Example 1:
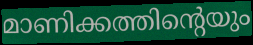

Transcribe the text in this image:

മാണിക്കത്തിന്റെയും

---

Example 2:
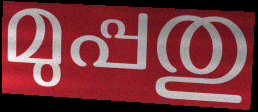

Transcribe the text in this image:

മുപ്പതു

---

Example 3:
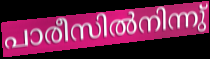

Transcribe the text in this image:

പാരീസിൽനിന്നു്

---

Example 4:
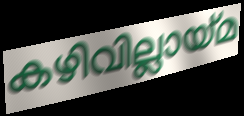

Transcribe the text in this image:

കഴിവില്ലായ്മ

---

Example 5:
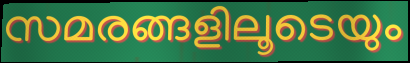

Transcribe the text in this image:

സമരങ്ങളിലൂടെയും